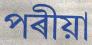
পৰীয়া